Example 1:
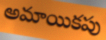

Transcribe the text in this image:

అమాయికపు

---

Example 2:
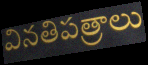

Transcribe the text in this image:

వినతిపత్రాలు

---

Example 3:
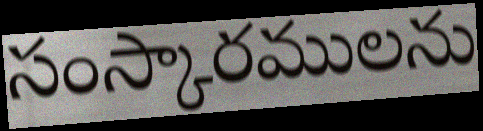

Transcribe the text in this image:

సంస్కారములను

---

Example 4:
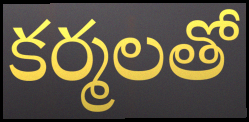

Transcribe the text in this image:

కర్మలతో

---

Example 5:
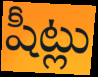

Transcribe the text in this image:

షీట్లు